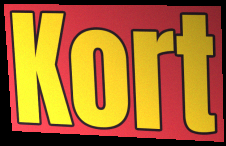
Kort